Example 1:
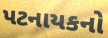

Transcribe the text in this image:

પટનાયકનો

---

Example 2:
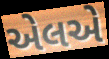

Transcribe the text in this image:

એલએ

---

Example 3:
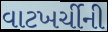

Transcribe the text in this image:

વાટખર્ચીની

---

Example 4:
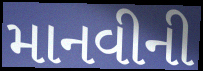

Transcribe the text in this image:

માનવીની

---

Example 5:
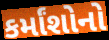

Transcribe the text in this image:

કર્માંશોનો